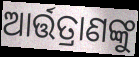
ଆର୍ତ୍ତତ୍ରାଣଙ୍କୁ